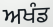
ਅਖੰਡ